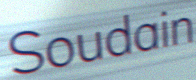
Soudain